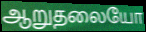
ஆறுதலையோ